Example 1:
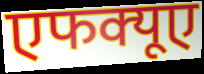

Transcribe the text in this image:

एफक्यूए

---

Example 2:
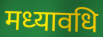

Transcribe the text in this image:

मध्‍यावधि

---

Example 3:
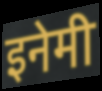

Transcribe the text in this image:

इनेमी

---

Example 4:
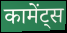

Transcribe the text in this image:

कामेंट्स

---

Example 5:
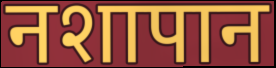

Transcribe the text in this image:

नशापान